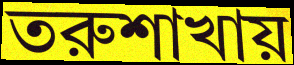
তরুশাখায়